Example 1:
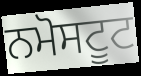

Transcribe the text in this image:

ਨਮੋਸਟੂਟ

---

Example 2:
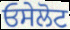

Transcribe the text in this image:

ਓਸੇਲੋਟ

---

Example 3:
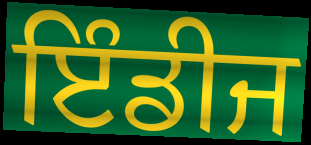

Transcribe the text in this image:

ਇੰਡੀਜ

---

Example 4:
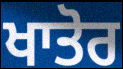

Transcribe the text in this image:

ਖਾਤੋਰ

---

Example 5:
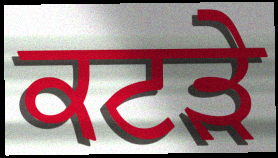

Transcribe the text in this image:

ਕਟੜੇ